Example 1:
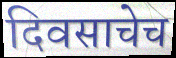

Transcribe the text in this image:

दिवसाचेच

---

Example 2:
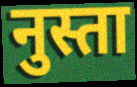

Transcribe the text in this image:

नुस्ता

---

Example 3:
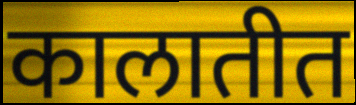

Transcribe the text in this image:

कालातीत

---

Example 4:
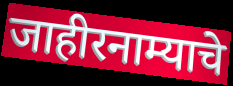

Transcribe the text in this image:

जाहीरनाम्याचे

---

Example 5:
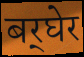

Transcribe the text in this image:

बर्घेर